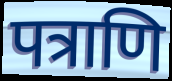
पत्राणि